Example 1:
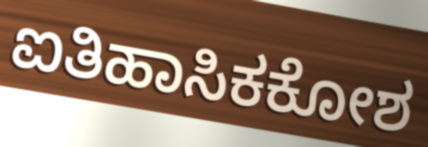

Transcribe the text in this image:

ಐತಿಹಾಸಿಕಕೋಶ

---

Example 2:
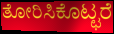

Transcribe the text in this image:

ತೋರಿಸಿಕೊಟ್ಟರೆ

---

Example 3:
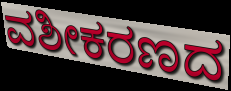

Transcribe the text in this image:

ವಶೀಕರಣದ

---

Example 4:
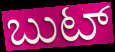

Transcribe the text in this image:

ಬುಟ್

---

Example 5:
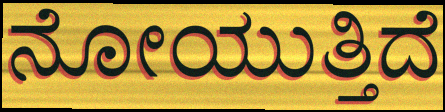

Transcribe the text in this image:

ನೋಯುತ್ತಿದೆ